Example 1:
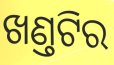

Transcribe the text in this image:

ଖଣ୍ତଟିର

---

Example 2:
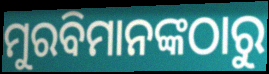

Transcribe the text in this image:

ମୁରବିମାନଙ୍କଠାରୁ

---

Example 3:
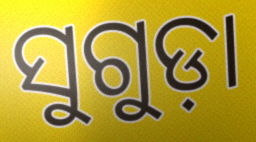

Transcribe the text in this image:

ସୁଗୁଡ଼ା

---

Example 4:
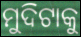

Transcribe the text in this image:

ମୁଦିଟାକୁ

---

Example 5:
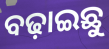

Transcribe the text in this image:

ବଢ଼ାଇଛୁ